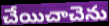
చేయిచాచెను